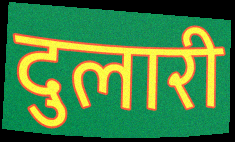
दुलारी